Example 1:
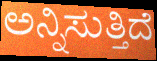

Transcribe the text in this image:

ಅನ್ನಿಸುತ್ತಿದೆ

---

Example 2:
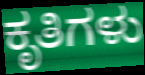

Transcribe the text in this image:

ಕೃತಿಗಳು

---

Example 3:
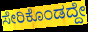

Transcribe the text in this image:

ಸೇರಿಕೊಂಡದ್ದೇ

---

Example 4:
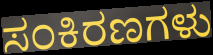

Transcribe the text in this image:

ಸಂಕಿರಣಗಳು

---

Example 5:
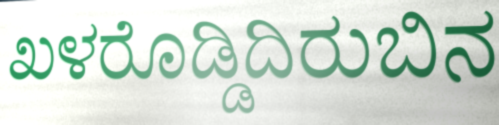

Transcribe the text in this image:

ಖಳರೊಡ್ಡಿದಿರುಬಿನ